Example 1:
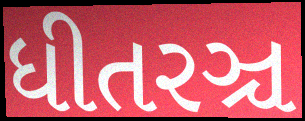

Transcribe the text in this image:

ધીતરઞ્ચ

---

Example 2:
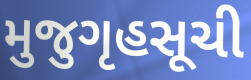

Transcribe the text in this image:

મુજુગૃહસૂચી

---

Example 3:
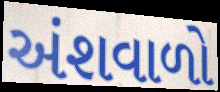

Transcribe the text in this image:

અંશવાળો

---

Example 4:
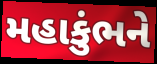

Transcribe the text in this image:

મહાકુંભને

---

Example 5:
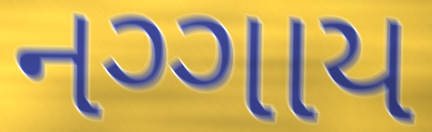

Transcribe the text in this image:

નગ્ગાય